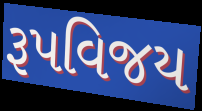
રૂપવિજય